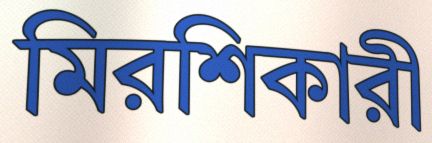
মিরশিকারী